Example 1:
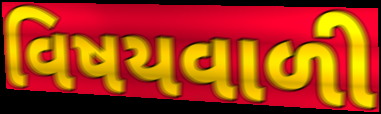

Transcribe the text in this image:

વિષયવાળી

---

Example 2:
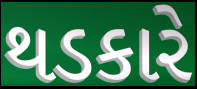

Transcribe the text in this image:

થડકારે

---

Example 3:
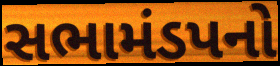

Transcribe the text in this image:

સભામંડપનો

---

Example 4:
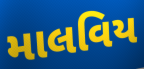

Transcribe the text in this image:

માલવિય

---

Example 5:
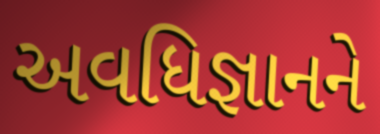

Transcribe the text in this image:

અવધિજ્ઞાનને